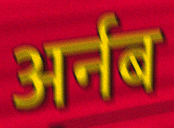
अर्नब